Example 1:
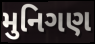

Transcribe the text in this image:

મુનિગણ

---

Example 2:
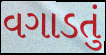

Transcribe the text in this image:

વગાડતું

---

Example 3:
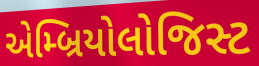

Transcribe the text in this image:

એમ્બ્રિયોલોજિસ્ટ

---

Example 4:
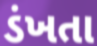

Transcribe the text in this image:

ડંખતા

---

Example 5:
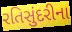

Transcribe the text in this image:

રતિસુંદરીના